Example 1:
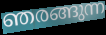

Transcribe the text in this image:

ഞരങ്ങുന്ന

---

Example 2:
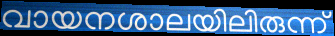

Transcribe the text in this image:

വായനശാലയിലിരുന്ന്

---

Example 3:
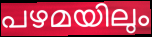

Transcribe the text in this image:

പഴമയിലും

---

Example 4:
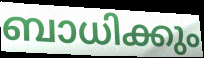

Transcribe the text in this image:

ബാധിക്കും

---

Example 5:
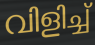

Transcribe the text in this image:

വിളിച്ച്